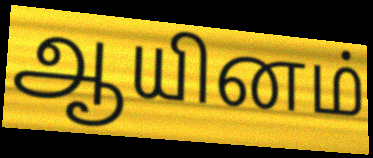
ஆயினம்